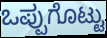
ಒಪ್ಪುಗೊಟ್ಟು